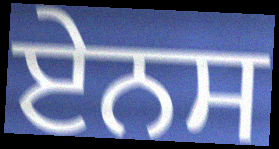
ਏਨਸ